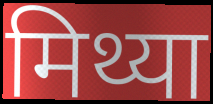
मिथ्या